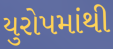
યુરોપમાંથી